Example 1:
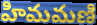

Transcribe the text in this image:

హిమమణి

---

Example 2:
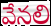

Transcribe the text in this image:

వేనలి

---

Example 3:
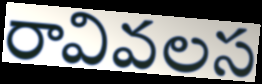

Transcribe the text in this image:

రావివలస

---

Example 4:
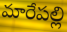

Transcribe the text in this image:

మారేపల్లి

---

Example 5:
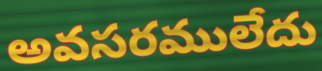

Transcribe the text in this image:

అవసరములేదు